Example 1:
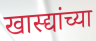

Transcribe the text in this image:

खास्द्यांच्या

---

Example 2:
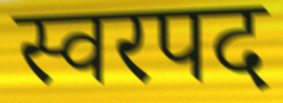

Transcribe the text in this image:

स्वरपद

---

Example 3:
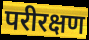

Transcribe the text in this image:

परीरक्षण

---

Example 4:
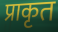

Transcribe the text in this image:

प्राकृत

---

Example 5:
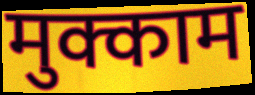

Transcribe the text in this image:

मुक्काम